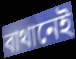
বাথানেই